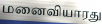
மனைவியாரது